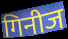
गिनीज